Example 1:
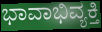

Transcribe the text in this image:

ಭಾವಾಭಿವ್ಯಕ್ತಿ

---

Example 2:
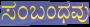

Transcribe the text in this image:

ಸಂಬಂಧವು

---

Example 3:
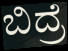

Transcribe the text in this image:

ಬಿದ್ರೆ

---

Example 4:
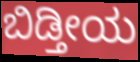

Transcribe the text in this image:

ಬಿಡ್ತೀಯ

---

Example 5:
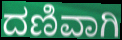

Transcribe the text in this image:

ದಣಿವಾಗಿ